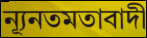
ন্যূনতমতাবাদী